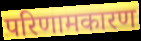
परिणामकारण